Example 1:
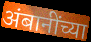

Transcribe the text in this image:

अंबानींच्या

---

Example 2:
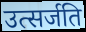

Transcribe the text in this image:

उत्सर्जति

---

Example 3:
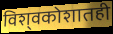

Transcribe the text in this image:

विश्वकोशातही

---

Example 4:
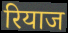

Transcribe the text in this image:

रियाज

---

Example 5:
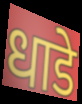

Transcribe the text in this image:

धाडे